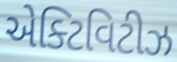
એક્ટિવિટીઝ